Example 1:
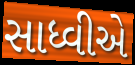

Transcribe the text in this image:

સાધ્વીએ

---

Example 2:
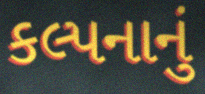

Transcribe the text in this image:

કલ્પનાનું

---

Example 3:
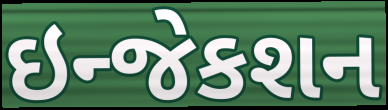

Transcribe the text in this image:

ઇન્જેકશન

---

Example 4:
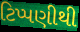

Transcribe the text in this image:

ટિપ્પણીથી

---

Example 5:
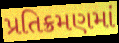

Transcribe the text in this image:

પ્રતિક્રમણમાં